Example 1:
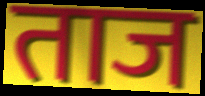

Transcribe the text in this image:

ताज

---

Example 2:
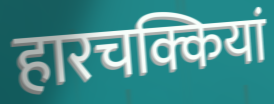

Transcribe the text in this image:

हारचक्कियां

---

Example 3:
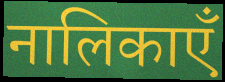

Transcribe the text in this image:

नालिकाएँ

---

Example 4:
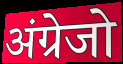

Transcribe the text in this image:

अंग्रेजो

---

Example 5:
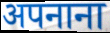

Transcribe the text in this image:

अपनाना